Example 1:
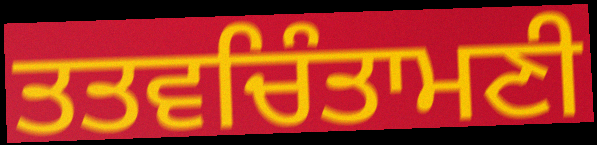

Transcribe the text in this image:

ਤਤਵਚਿੰਤਾਮਣੀ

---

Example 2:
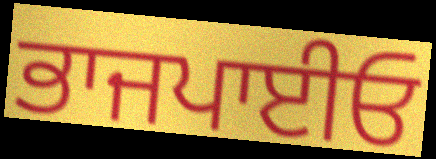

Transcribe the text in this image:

ਭਾਜਪਾਈਓ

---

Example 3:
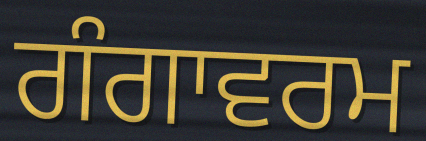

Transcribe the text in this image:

ਗੰਗਾਵਰਮ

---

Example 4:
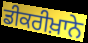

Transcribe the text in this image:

ਡੀਕਰੀਖ਼ਾਨੇ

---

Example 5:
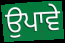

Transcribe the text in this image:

ਉਪਾਵੇ